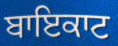
ਬਾਇਕਾਟ